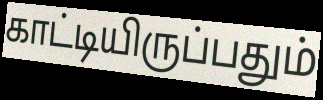
காட்டியிருப்பதும்